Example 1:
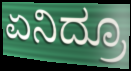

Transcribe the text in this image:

ಏನಿದ್ರೂ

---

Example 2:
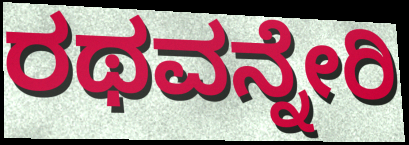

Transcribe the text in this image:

ರಥವನ್ನೇರಿ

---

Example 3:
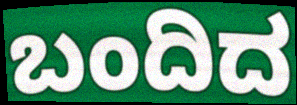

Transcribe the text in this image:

ಬಂದಿದ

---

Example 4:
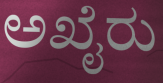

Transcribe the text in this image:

ಅಖೈರು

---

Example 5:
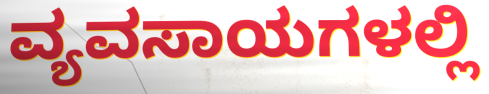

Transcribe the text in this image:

ವ್ಯವಸಾಯಗಳಲ್ಲಿ